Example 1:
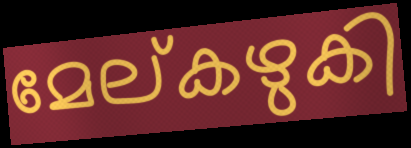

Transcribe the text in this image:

മേല്കഴുകി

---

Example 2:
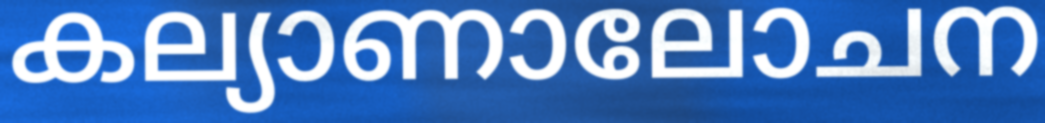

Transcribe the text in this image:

കല്യാണാലോചന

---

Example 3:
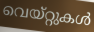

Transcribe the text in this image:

വെയ്റ്റുകൾ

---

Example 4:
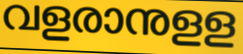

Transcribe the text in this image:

വളരാനുളള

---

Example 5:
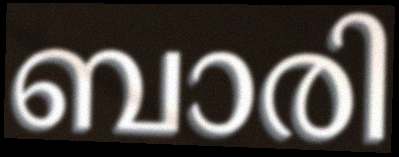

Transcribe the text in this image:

ബാരി